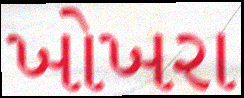
ખોખરા